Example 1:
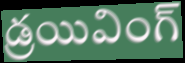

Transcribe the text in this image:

డ్రయివింగ్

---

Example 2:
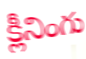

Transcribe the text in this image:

క్లీనింగు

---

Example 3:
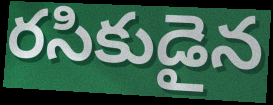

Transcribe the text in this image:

రసికుడైన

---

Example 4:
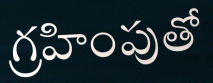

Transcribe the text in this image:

గ్రహింపుతో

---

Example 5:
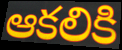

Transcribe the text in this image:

ఆకలికి